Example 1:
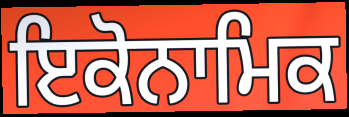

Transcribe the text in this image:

ਇਕੋਨਾਮਿਕ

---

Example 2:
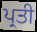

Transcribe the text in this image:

ਪ੍ਰਤੀ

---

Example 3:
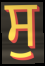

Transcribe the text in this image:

ਸੁ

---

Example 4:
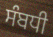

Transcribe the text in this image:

ਸੰਬਧੀ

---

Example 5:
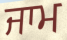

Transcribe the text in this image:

ਜਾਮ